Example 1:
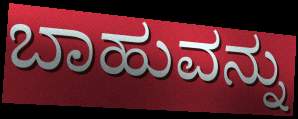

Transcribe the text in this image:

ಬಾಹುವನ್ನು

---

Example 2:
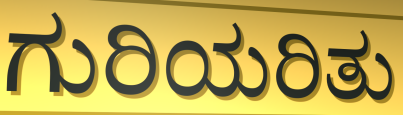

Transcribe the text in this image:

ಗುರಿಯರಿತು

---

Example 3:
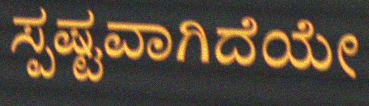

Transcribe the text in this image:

ಸ್ಪಷ್ಟವಾಗಿದೆಯೇ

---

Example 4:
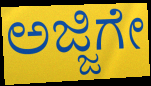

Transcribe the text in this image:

ಅಜ್ಜಿಗೇ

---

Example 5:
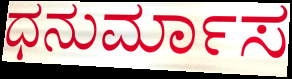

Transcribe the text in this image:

ಧನುರ್ಮಾಸ